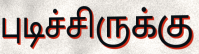
புடிச்சிருக்கு